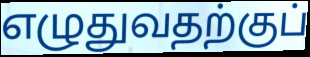
எழுதுவதற்குப்